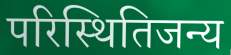
परिस्थितिजन्य